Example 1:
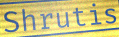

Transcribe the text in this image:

Shrutis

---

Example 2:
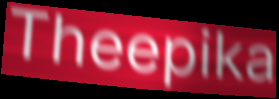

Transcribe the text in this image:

Theepika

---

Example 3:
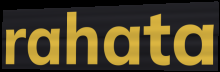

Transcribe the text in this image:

rahata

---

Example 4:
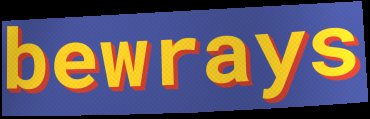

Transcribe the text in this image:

bewrays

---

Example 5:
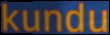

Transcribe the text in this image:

kundu